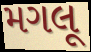
મગલૂ